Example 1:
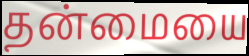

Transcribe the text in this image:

தன்மையை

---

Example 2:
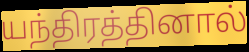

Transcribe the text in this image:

யந்திரத்தினால்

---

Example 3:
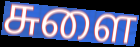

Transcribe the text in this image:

சுளை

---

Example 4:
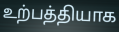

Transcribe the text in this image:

உற்பத்தியாக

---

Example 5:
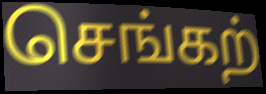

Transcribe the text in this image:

செங்கற்